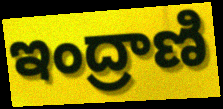
ఇంద్రాణి